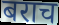
बराच